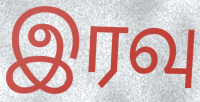
இரவு